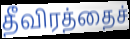
தீவிரத்தைச்